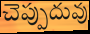
చెప్పుదువు